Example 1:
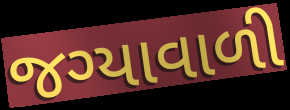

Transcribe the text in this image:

જગ્યાવાળી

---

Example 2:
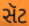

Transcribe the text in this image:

સૅટ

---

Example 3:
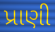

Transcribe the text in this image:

પ્રાણી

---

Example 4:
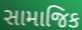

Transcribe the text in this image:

સામાજિક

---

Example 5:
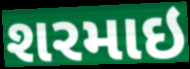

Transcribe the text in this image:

શરમાઇ